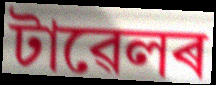
টাৱেলৰ